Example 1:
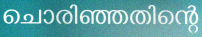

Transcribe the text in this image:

ചൊരിഞ്ഞതിന്റെ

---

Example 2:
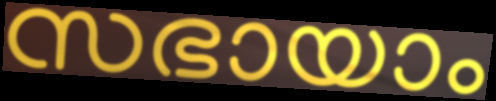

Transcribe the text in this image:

സഭായാം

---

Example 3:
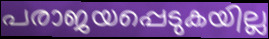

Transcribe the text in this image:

പരാജയപ്പെടുകയില്ല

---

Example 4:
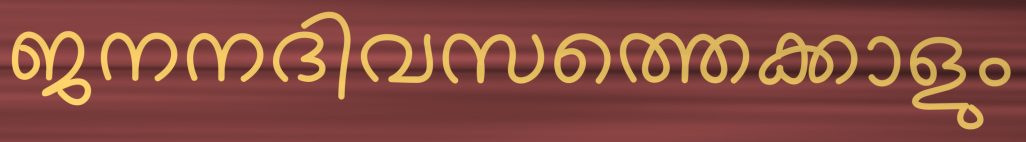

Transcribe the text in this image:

ജനനദിവസത്തെക്കാളും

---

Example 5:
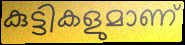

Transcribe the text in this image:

കുട്ടികളുമാണ്